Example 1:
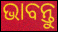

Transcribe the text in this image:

ଭାବନ୍ତୁ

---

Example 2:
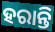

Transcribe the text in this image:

ହରାନ୍ତି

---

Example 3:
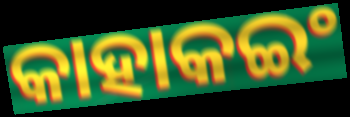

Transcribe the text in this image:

କାହାକଇଂ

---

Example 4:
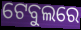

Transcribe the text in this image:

ଟେବୁଲରେ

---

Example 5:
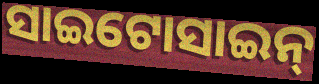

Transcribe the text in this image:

ସାଇଟୋସାଇନ୍